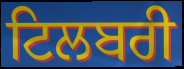
ਟਿਲਬਰੀ